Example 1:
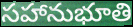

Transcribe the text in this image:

సహానుభూతి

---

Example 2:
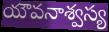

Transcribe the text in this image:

యౌవనాశ్వస్య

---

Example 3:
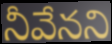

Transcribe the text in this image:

నీవేనని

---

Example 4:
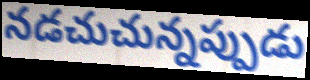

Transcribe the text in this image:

నడచుచున్నప్పుడు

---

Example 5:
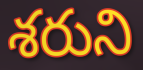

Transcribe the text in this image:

శరుని